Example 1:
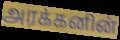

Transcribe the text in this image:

அரக்கனின்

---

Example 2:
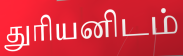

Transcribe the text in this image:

துரியனிடம்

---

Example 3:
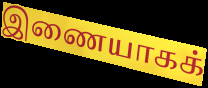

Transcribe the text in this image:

இணையாகக்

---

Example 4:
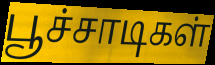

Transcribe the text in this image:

பூச்சாடிகள்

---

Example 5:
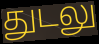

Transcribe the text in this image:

துடலு